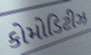
કોમોડિટીઝ